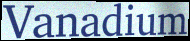
Vanadium